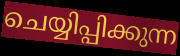
ചെയ്യിപ്പിക്കുന്ന